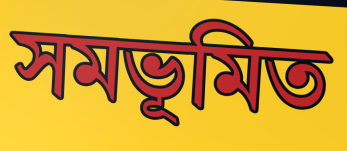
সমভূমিত